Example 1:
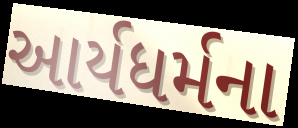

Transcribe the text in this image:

આર્યધર્મના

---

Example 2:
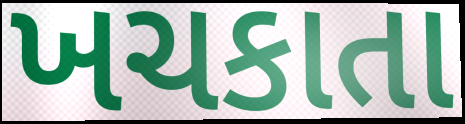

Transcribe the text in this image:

ખચકાતા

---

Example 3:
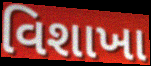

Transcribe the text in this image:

વિશાખા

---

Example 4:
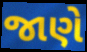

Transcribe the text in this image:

જાણે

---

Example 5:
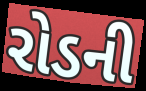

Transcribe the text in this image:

રોડની